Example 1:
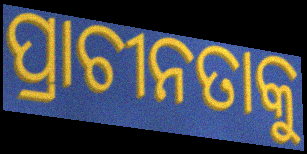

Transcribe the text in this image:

ପ୍ରାଚୀନତାକୁ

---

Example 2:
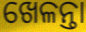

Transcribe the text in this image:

ଖେଳନ୍ତା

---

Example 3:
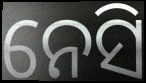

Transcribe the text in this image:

ନେସି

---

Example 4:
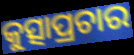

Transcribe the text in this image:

କୁତ୍ସାପ୍ରଚାର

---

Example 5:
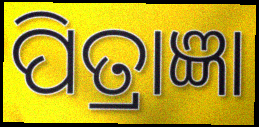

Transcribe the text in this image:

ପିତ୍ରାଜ୍ଞା